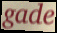
gade